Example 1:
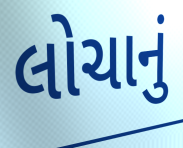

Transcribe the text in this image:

લોચાનું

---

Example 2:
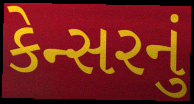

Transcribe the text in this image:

કેન્સરનું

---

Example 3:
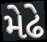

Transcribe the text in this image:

મેઢે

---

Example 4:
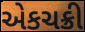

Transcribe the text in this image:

એકચક્રી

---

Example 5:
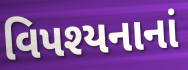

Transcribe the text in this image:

વિપશ્યનાનાં